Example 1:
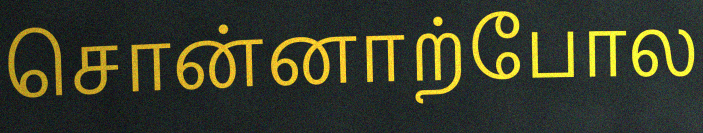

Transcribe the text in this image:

சொன்னாற்போல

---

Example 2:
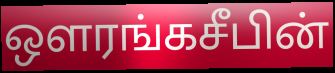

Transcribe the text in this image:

ஔரங்கசீபின்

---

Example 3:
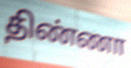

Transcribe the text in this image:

திண்ணா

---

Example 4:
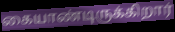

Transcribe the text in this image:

கையாண்டிருக்கிறார்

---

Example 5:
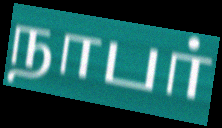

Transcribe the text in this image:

நாபர்